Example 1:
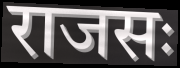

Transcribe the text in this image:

राजसः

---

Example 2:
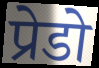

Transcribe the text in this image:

प्रेडो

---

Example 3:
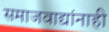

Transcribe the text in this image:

समाजवाद्यांनाही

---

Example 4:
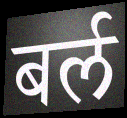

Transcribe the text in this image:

बर्ल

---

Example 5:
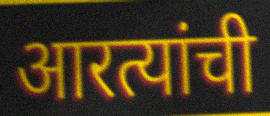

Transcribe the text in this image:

आरत्यांची